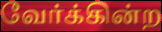
வேர்க்கின்ற